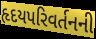
હૃદયપરિવર્તનની